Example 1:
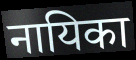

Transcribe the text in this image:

नायिका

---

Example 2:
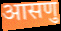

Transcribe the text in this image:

आसणु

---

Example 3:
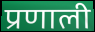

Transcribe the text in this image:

प्रणाली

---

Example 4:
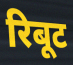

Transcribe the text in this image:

रिबूट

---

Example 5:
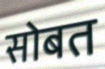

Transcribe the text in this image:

सोबत